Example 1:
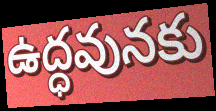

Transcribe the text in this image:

ఉద్ధవునకు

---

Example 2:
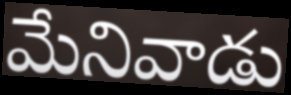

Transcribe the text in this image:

మేనివాడు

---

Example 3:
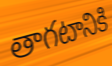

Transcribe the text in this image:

తాగటానికి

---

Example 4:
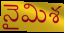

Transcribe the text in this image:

నైమిశ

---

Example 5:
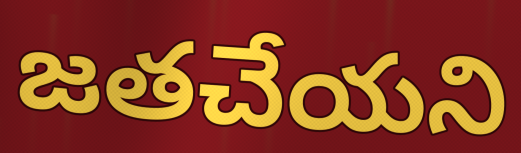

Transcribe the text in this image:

జతచేయని